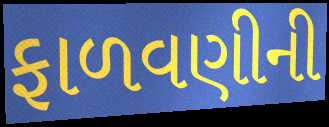
ફાળવણીની